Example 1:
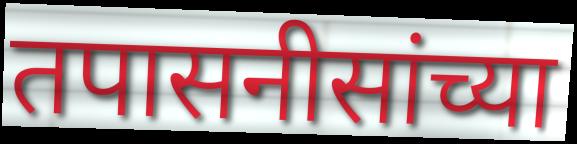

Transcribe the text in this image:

तपासनीसांच्या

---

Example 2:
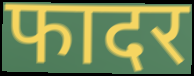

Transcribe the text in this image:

फादर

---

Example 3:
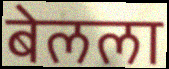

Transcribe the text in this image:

बेलला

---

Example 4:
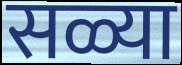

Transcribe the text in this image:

सळ्या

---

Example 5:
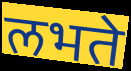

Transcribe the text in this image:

लभते